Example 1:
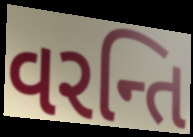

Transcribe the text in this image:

વરન્તિ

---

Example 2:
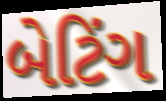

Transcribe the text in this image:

બેટિંગ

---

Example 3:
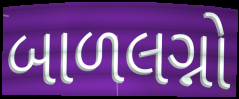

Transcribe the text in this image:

બાળલગ્નો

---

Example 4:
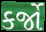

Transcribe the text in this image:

કર્જો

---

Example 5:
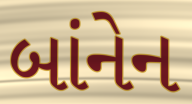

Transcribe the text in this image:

બાંનેન